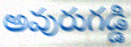
అవురుగడ్డి